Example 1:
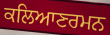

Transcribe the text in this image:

ਕਲਿਆਣਰਮਨ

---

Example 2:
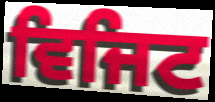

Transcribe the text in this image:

ਵਿਜਿਟ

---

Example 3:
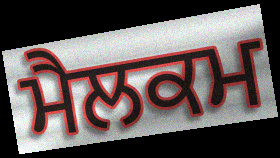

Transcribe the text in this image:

ਮੈਲਕਮ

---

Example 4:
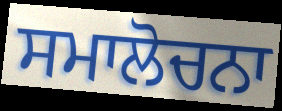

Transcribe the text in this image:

ਸਮਾਲੋਚਨਾ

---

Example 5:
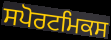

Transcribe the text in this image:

ਸਪੋਰਟਮਿਕਸ